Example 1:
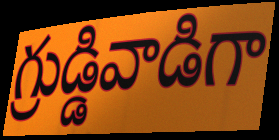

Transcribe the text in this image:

గ్రుడ్డివాడిగా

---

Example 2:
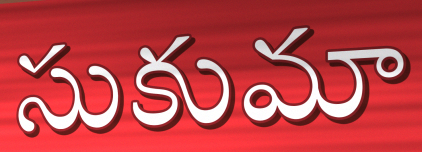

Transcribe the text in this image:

సుకుమా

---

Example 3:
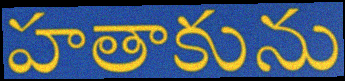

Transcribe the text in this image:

హతాకును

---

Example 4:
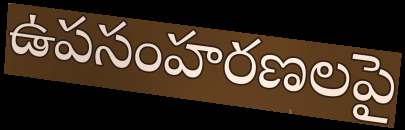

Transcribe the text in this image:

ఉపసంహరణలపై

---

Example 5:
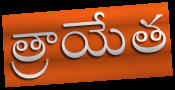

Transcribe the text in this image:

త్రాయేత